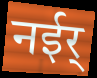
नईर्